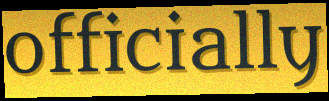
officially